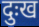
दुःख